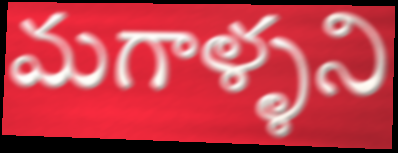
మగాళ్ళని